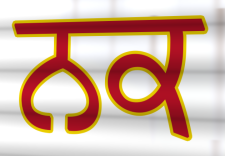
ਨਕ